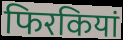
फिरकियां